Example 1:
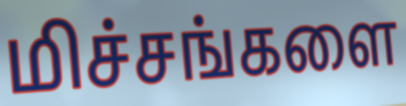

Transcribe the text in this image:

மிச்சங்களை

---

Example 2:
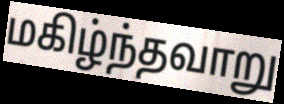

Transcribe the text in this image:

மகிழ்ந்தவாறு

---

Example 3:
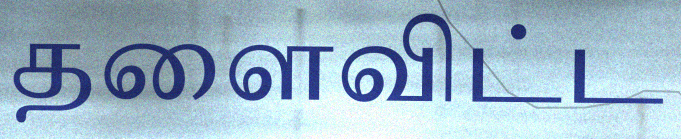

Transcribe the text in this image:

தளைவிட்ட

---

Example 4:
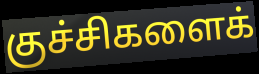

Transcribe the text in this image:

குச்சிகளைக்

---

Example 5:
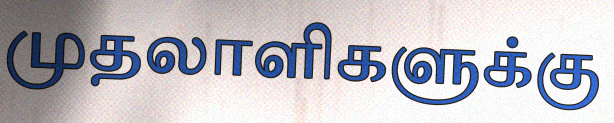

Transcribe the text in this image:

முதலாளிகளுக்கு